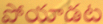
పోయాడట